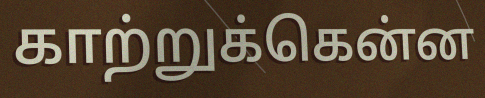
காற்றுக்கென்ன